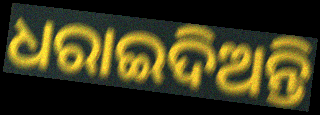
ଧରାଇଦିଅନ୍ତି